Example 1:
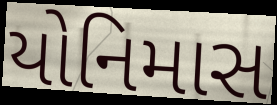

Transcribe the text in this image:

યોનિમાસ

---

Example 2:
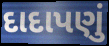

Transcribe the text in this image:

દાદાપણું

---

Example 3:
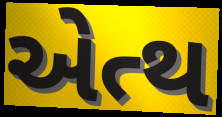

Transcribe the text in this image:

એત્થ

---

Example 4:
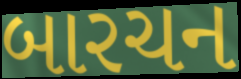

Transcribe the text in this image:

બારચન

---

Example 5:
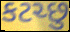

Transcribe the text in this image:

કટચ્છુ